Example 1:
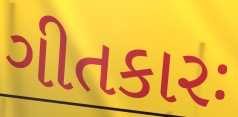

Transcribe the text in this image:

ગીતકારઃ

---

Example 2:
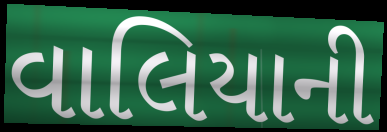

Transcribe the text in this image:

વાલિયાની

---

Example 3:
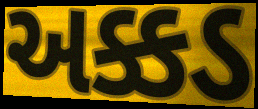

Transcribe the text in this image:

અક્કડ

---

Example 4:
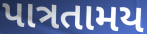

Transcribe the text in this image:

પાત્રતામય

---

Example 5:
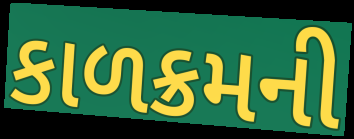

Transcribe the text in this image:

કાળક્રમની